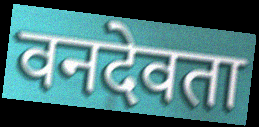
वनदेवता